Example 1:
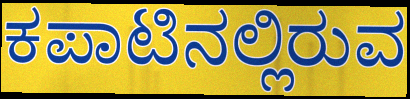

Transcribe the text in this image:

ಕಪಾಟಿನಲ್ಲಿರುವ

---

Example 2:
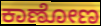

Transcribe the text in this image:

ಕಾಣೋಣ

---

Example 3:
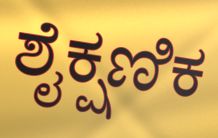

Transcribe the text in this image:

ಶೈಕ್ಷಣಿಕ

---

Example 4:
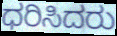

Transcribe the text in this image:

ಧರಿಸಿದರು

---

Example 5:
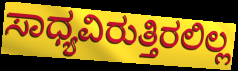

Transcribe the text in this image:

ಸಾಧ್ಯವಿರುತ್ತಿರಲಿಲ್ಲ